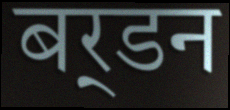
बर्डन